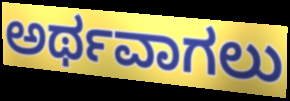
ಅರ್ಥವಾಗಲು